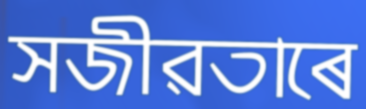
সজীৱতাৰে